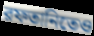
রফতানিতেও